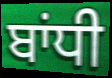
ਬਾਂਧੀ